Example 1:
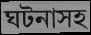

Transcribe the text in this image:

ঘটনাসহ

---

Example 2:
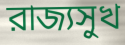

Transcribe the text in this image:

রাজ্যসুখ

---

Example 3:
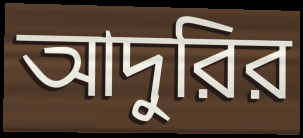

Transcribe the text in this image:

আদুরির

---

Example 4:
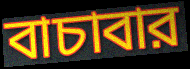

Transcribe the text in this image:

বাচাবার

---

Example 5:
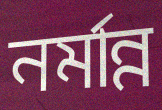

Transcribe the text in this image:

নর্মান্ন